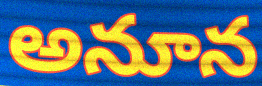
అనూన